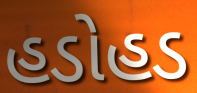
હડોહડ